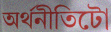
অৰ্থনীতিটো